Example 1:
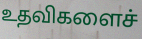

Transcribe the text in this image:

உதவிகளைச்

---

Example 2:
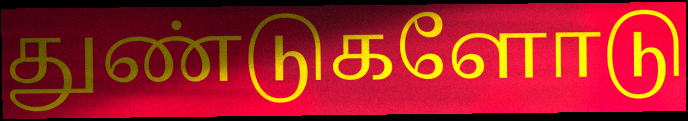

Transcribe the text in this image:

துண்டுகளோடு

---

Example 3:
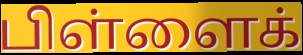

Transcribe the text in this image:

பிள்ளைக்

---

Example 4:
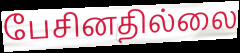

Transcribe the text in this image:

பேசினதில்லை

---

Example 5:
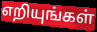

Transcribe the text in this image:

எறியுங்கள்